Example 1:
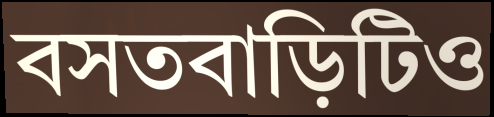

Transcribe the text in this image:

বসতবাড়িটিও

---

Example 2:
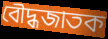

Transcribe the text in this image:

বৌদ্ধজাতক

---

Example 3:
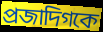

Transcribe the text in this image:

প্রজাদিগকে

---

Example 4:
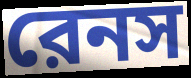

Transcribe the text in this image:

রেনস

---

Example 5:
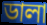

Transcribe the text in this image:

ডালা